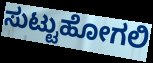
ಸುಟ್ಟುಹೋಗಲಿ